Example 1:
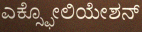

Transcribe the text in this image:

ಎಕ್ಸ್ಫೋಲಿಯೇಶನ್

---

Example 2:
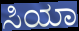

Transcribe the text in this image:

ಸಿಯಾ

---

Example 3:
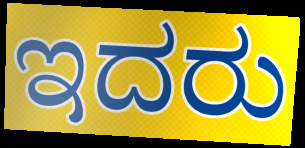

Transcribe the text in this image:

ಇದರು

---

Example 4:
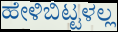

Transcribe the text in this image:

ಹೇಳಿಬಿಟ್ಟಳಲ್ಲ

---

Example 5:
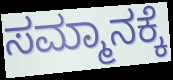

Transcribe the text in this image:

ಸಮ್ಮಾನಕ್ಕೆ